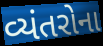
વ્યંતરોના